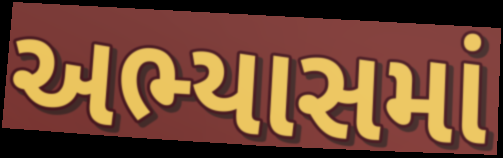
અભ્યાસમાં